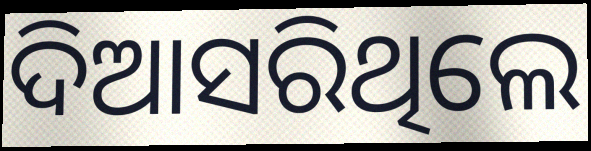
ଦିଆସରିଥିଲେ